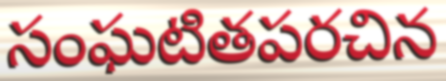
సంఘటితపరచిన